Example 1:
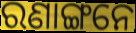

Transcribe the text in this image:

ରଣାଙ୍ଗନେ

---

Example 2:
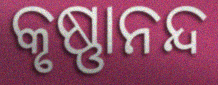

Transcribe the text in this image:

କୃଷ୍ଣାନନ୍ଦ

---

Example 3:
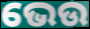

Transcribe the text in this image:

ଭେଉ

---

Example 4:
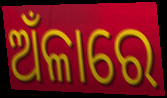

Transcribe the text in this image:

ଅଁଳାରେ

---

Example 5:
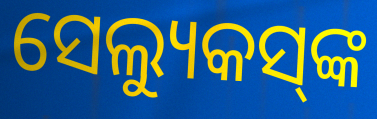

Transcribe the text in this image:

ସେଲ୍ୟୁକସ୍‌ଙ୍କ